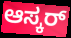
ಆಸ್ಕರ್